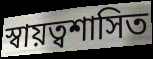
স্বায়ত্বশাসিত